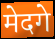
मेदगे